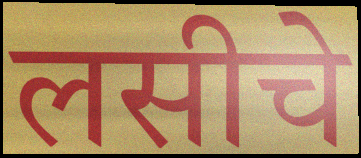
लसीचे